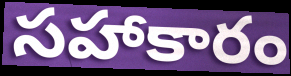
సహాకారం